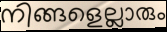
നിങ്ങളെല്ലാരും